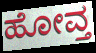
ಹೋವ್ತ